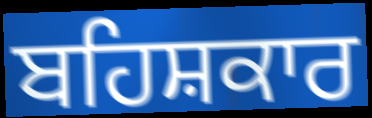
ਬਹਿਸ਼ਕਾਰ